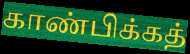
காண்பிக்கத்